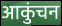
आकुंचन